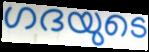
ഗദയുടെ